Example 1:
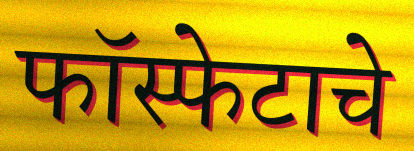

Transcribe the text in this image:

फॉस्फेटाचे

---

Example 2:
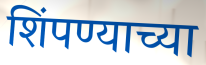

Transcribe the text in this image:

शिंपण्याच्या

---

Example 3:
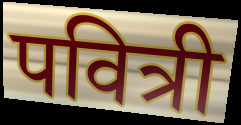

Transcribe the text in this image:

पवित्री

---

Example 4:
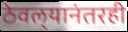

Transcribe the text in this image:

ठेवल्यानंतरही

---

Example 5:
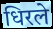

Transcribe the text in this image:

धिरले